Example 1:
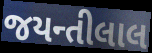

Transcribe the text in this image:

જયન્તીલાલ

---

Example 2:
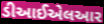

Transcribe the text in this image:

ડીઆઈએલઆર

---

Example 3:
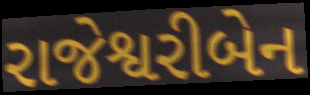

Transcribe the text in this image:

રાજેશ્વરીબેન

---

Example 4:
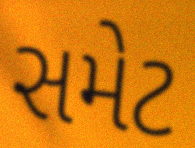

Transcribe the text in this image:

સમેટ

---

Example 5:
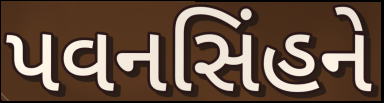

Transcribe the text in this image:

પવનસિંહને